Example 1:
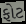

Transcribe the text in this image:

ફોટ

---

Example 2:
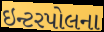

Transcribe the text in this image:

ઇન્ટરપોલના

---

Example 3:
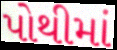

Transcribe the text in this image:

પોથીમાં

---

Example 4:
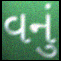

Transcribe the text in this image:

વનું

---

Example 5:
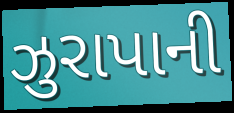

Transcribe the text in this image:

ઝુરાપાની